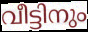
വീട്ടിനും